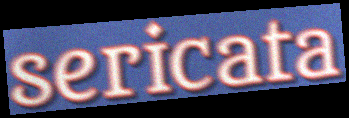
sericata